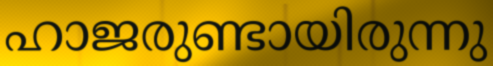
ഹാജരുണ്ടായിരുന്നു